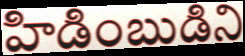
హిడింబుడిని